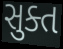
સુક્ત